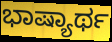
ಭಾಷ್ಯಾರ್ಥ